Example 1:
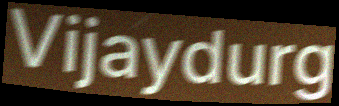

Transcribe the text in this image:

Vijaydurg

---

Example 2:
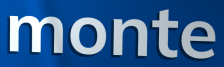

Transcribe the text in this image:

monte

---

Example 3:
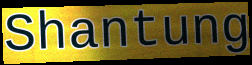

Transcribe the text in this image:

Shantung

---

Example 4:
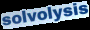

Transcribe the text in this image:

solvolysis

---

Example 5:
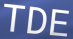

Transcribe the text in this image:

TDE